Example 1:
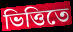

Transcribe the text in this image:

ভিত্তিতে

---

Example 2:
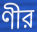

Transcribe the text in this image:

ণীর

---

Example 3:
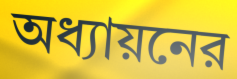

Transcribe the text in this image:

অধ্যায়নের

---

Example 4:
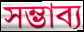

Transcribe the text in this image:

সম্ভাব্য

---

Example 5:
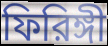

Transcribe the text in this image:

ফিরিঙ্গী